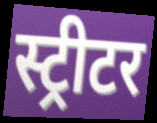
स्ट्रीटर